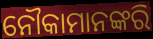
ନୌକାମାନଙ୍କରି